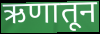
ऋणातून